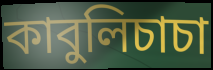
কাবুলিচাচা